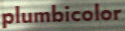
plumbicolor